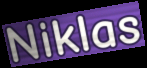
Niklas